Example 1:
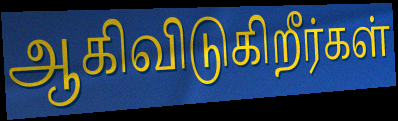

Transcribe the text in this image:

ஆகிவிடுகிறீர்கள்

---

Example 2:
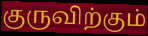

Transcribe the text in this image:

குருவிற்கும்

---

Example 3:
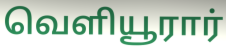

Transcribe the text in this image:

வெளியூரார்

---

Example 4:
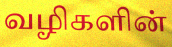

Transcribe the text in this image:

வழிகளின்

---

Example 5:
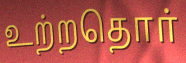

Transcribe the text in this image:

உற்றதொர்